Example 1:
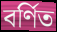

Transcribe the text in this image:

বর্ণিত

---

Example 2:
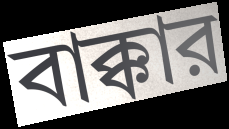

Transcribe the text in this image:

বাক্কার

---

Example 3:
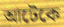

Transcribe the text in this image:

আটেকে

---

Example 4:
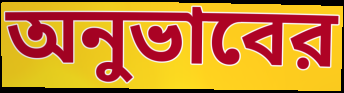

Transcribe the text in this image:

অনুভাবের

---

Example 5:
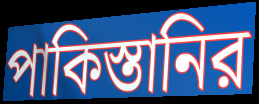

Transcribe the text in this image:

পাকিস্তানির